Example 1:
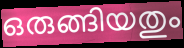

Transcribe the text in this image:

ഒരുങ്ങിയതും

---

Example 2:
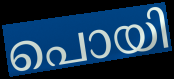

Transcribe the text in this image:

പൊയി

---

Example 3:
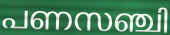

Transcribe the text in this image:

പണസഞ്ചി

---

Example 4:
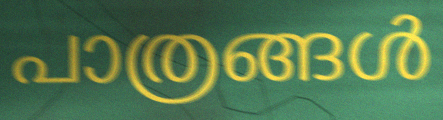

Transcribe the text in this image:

പാത്രങ്ങൾ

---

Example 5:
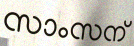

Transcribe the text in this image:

സാംസന്